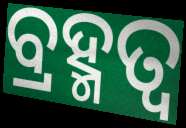
ବ୍ରହ୍ମତ୍ୱ